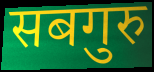
सबगुरु